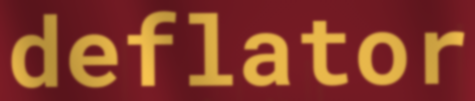
deflator